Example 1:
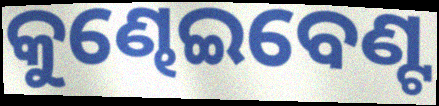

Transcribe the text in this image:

କୁଣ୍ଢେଇବେଣ୍ଟ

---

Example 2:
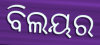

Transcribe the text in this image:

ବିଲୟର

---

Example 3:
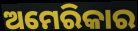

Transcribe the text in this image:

ଅମେରିକାର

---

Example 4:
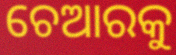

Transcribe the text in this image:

ଚେଆରକୁ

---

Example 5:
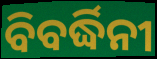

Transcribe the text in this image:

ବିବର୍ଦ୍ଧିନୀ